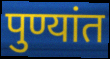
पुण्यांत